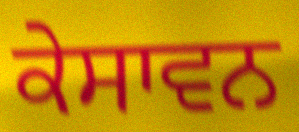
ਕੇਸਾਵਨ